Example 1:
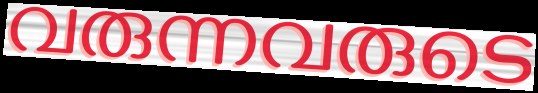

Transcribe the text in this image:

വരുന്നവരുടെ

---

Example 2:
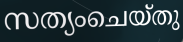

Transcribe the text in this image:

സത്യംചെയ്തു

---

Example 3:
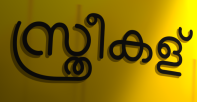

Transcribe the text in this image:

സ്ത്രീകള്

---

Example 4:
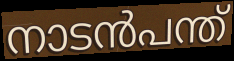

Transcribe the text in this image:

നാടൻപന്ത്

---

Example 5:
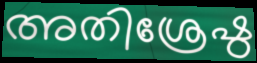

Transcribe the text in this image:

അതിശ്രേഷ്ഠ